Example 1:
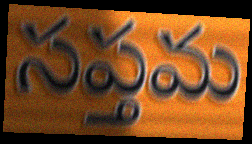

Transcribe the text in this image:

సప్తమ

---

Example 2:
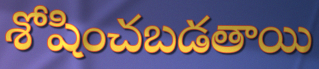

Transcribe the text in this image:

శోషించబడతాయి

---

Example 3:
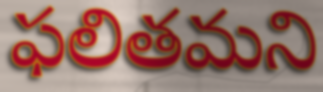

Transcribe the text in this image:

ఫలితమని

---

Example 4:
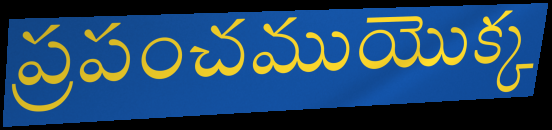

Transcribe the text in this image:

ప్రపంచముయొక్క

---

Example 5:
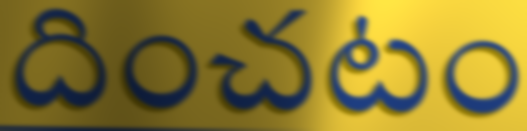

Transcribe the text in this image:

దించటం